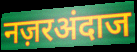
नज़रअंदाज